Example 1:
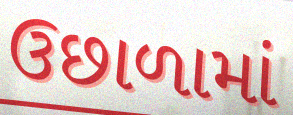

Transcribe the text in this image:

ઉછાળામાં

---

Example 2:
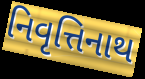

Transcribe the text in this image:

નિવૃત્તિનાથ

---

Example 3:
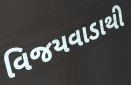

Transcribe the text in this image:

વિજયવાડાથી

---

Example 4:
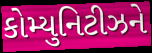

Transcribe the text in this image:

કોમ્યુનિટીઝને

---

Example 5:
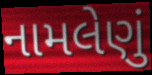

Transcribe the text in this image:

નામલેણું